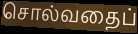
சொல்வதைப்